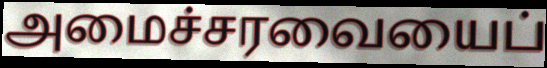
அமைச்சரவையைப்